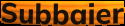
Subbaier